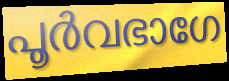
പൂർവഭാഗേ